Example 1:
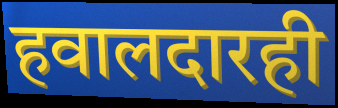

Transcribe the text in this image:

हवालदारही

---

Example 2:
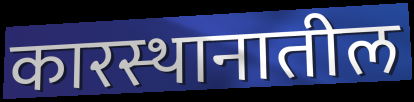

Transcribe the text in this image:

कारस्थानातील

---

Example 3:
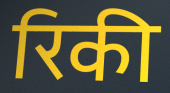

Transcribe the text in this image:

रिकी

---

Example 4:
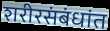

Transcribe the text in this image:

शरीरसंबंधांत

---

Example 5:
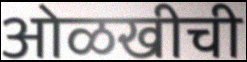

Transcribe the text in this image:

ओळखीची